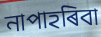
নাপাহৰিবা